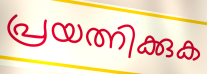
പ്രയത്നിക്കുക